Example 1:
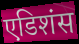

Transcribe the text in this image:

एडिशंस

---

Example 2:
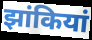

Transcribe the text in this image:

झांकियां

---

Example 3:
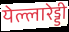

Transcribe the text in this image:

येल्लारेड्डी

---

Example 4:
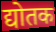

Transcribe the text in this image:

द्योतक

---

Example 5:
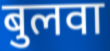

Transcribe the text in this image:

बुलवा